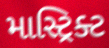
માસ્ટ્રિક્ટ